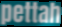
pettah